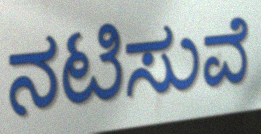
ನಟಿಸುವೆ